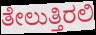
ತೇಲುತ್ತಿರಲಿ